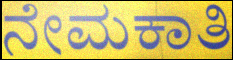
ನೇಮಕಾತಿ